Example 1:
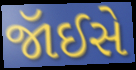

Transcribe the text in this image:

જૉઈસે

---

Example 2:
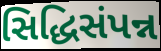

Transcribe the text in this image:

સિદ્ધિસંપન્ન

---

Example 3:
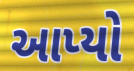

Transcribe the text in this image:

આપ્યો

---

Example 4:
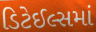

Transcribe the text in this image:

ડિટેઈલ્સમાં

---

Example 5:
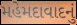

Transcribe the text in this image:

મહેમદાવાદનું